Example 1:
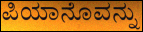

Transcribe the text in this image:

ಪಿಯಾನೊವನ್ನು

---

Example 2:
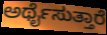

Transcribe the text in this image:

ಅರ್ಥೈಸುತ್ತಾರೆ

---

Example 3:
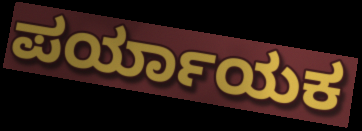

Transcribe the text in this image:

ಪರ್ಯಾಯಕ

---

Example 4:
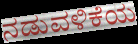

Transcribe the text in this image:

ನಡುವಳಿಕೆಯ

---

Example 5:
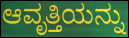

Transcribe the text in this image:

ಆವೃತ್ತಿಯನ್ನು